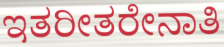
ಇತರೀತರೇನಾತಿ